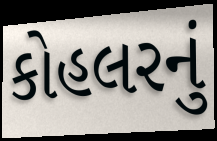
કોહલરનું